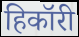
हिकॉरी